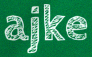
ajke